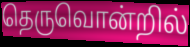
தெருவொன்றில்